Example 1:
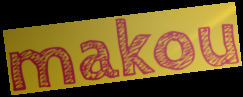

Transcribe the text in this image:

makou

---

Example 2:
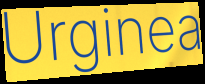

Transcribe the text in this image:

Urginea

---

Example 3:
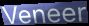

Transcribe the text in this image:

Veneer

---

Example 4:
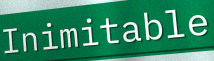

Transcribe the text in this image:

Inimitable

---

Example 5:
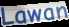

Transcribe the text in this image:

Lawan